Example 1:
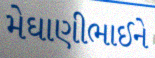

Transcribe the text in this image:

મેઘાણીભાઈને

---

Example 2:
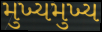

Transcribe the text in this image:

મુખ્યમુખ્ય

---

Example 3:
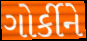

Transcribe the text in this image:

ગોર્કીને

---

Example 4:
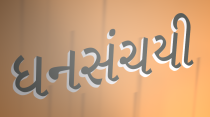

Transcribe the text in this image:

ધનસંચયી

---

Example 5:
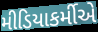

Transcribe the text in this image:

મીડિયાકર્મીએ